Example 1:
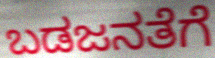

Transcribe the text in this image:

ಬಡಜನತೆಗೆ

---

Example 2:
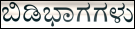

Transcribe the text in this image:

ಬಿಡಿಭಾಗಗಳು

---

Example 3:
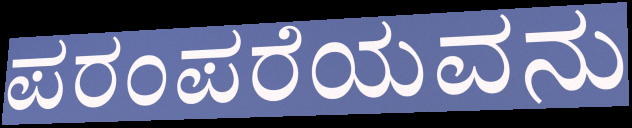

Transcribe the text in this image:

ಪರಂಪರೆಯವನು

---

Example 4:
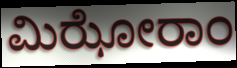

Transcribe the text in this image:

ಮಿಝೋರಾಂ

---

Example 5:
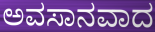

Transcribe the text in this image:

ಅವಸಾನವಾದ